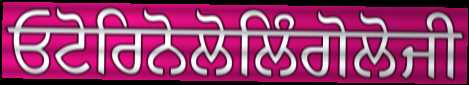
ਓਟੋਰਿਨੋਲੋਲਿੰਗੋਲੋਜੀ